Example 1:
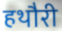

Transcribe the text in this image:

हथौरी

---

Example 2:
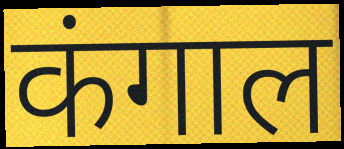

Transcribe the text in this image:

कंगाल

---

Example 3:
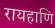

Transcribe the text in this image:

रायहाणि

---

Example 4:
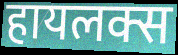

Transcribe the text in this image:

हायलक्स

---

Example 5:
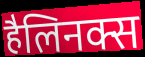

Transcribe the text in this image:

हैलिनक्स